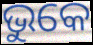
ଭୁକେ